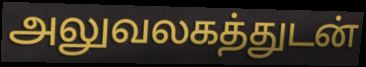
அலுவலகத்துடன்